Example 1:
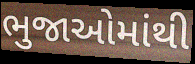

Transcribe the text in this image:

ભુજાઓમાંથી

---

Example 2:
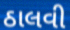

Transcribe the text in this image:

ઠાલવી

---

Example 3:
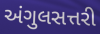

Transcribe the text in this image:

અંગુલસત્તરી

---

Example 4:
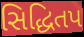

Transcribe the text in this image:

સિદ્ધિતપ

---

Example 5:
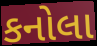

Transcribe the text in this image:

કનોલા